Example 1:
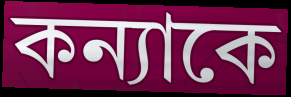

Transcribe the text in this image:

কন্যাকে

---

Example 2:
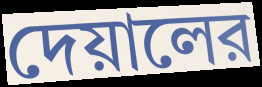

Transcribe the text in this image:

দেয়ালের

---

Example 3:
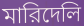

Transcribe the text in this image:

মারিদেলি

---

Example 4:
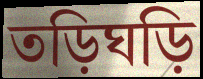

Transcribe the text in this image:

তড়িঘড়ি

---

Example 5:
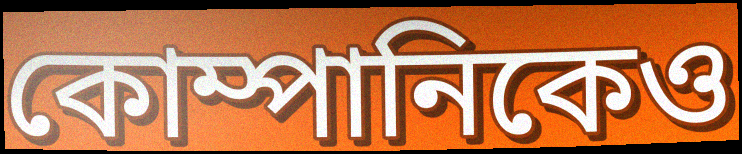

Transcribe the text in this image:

কোম্পানিকেও